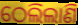
ଠେଲିଲାଣି